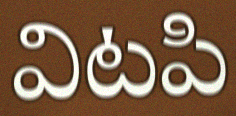
విటపి